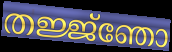
തജ്ജ്ഞോ